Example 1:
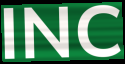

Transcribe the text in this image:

INC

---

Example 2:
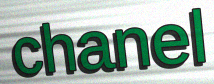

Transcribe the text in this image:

chanel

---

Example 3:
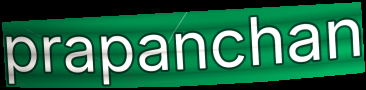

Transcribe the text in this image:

prapanchan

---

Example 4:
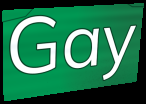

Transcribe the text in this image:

Gay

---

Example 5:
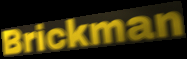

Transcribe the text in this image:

Brickman